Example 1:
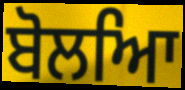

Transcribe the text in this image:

ਬੋਲਆਿ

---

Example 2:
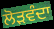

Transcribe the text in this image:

ਲੋੜਵੰਦਾ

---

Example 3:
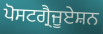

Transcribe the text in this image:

ਪੋਸਟਗ੍ਰੈਜੂਏਸ਼ਨ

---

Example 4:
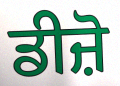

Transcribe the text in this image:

ਡੀਜ਼ੋ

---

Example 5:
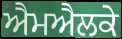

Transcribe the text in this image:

ਐਮਐਲਕੇ